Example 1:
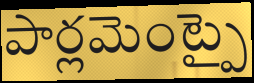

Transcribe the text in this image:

పార్లమెంట్పై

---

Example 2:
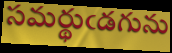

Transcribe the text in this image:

సమర్థుఁడగును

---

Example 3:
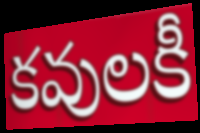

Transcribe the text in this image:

కవులకీ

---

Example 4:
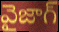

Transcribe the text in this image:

వైజాగ్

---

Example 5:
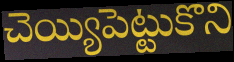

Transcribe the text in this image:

చెయ్యిపెట్టుకొని